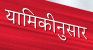
यामिकीनुसार